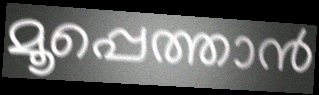
മൂപ്പെത്താൻ